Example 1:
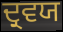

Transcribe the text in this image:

ਦ੍ਰਵਯ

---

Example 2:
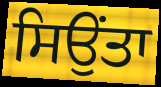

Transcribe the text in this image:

ਸਿਉਂਤਾ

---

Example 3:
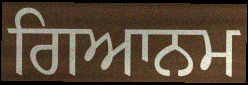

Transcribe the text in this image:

ਗਿਆਨਮ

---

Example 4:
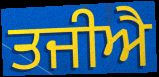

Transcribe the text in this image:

ਤਜੀਐ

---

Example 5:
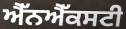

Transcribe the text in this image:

ਐੱਨਐੱਕਸਟੀ